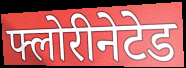
फ्लोरीनेटेड